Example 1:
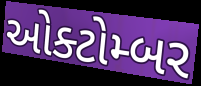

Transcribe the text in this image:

ઓક્ટોમ્બર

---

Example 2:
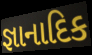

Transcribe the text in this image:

જ્ઞાનાદિક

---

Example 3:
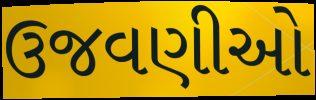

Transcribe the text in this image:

ઉજવણીઓ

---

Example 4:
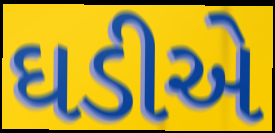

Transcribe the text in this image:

ઘડીએ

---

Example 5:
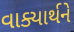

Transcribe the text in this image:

વાક્યાર્થને